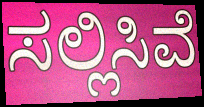
ಸಲ್ಲಿಸಿವೆ